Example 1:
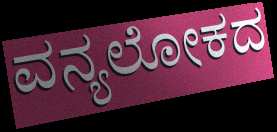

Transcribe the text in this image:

ವನ್ಯಲೋಕದ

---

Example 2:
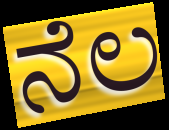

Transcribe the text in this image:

ನೆಲ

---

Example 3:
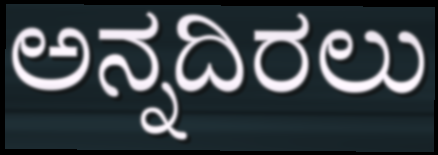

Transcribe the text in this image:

ಅನ್ನದಿರಲು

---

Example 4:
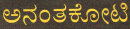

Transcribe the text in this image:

ಅನಂತಕೋಟಿ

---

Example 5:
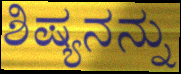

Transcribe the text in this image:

ಶಿಷ್ಯನನ್ನು